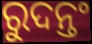
ରୁଦନ୍ତଂ